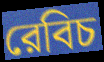
রেবিচ